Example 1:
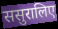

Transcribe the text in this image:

ससुरालिए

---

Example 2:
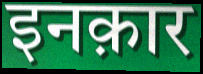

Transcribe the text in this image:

इनक़ार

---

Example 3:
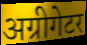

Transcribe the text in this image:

अग्रीगेटर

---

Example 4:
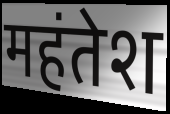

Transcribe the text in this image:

महंतेश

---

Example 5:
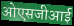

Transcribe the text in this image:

ओएसजीआई